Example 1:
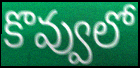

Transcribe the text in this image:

కొవ్వులో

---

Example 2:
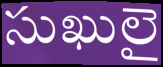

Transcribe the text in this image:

సుఖులై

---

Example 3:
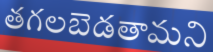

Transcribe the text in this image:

తగలబెడతామని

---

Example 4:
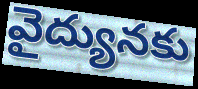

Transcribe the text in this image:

వైద్యునకు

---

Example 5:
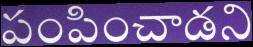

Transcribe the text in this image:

పంపించాడని